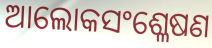
ଆଲୋକସଂଶ୍ଳେଷଣ